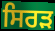
ਸਿਰੜ